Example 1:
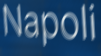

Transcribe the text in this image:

Napoli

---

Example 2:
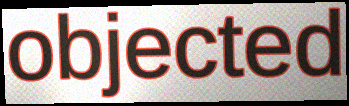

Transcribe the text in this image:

objected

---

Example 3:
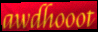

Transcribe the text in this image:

awdhooot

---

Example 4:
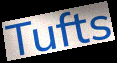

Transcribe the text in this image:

Tufts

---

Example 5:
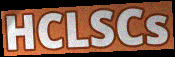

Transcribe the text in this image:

HCLSCs